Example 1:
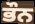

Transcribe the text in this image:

ਭੌਨ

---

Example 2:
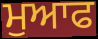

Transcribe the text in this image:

ਮੁਆਫ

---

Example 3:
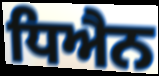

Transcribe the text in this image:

ਧਿਐਨ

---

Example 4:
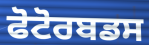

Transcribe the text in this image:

ਫੋਟੋਰਬਡਸ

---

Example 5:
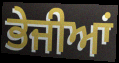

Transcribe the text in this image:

ਭੇਜੀਆਂ